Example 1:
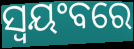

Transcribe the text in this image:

ସ୍ଵୟଂବରେ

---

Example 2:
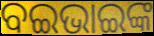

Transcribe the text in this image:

ବଇଭାଇଙ୍କ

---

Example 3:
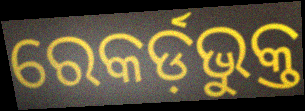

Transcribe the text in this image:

ରେକର୍ଡ଼ଭୁକ୍ତ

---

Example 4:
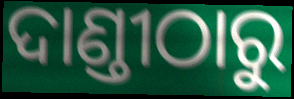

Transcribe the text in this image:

ଦାଣ୍ଡୀଠାରୁ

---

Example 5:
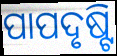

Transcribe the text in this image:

ପାପଦୃଷ୍ଟି